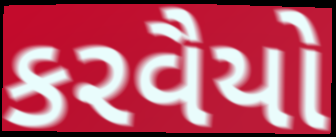
કરવૈયો